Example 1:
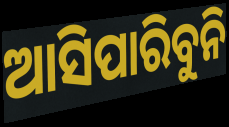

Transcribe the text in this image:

ଆସିପାରିବୁନି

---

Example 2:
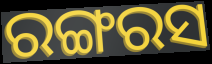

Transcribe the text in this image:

ରଙ୍ଗରସ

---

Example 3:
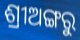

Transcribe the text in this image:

ଶ୍ରୀଅଙ୍ଗରୁ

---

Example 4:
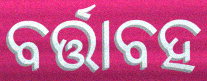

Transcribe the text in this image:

ବର୍ତ୍ତାବହ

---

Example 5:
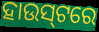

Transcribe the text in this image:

ହାଉସ୍‌ଟରେ